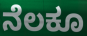
ನೆಲಕೂ